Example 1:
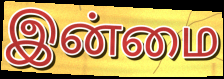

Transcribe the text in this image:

இன்மை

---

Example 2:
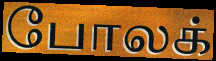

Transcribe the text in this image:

போலக்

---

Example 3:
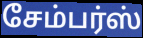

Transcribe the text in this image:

சேம்பர்ஸ்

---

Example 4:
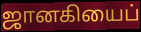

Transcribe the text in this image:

ஜானகியைப்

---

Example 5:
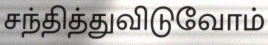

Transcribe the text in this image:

சந்தித்துவிடுவோம்